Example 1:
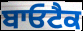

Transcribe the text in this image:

ਬਾਓਟੈਕ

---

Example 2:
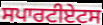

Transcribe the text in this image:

ਸਪਾਰਟੀਏਟਸ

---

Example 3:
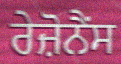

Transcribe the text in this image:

ਰੇਜ਼ੋਨੈਂਸ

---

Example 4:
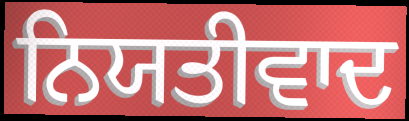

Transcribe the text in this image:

ਨਿਯਤੀਵਾਦ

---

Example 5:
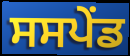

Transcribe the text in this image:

ਸਸਪੇੰਡ